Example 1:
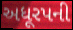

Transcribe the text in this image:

અધૂરપની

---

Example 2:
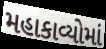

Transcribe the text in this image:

મહાકાવ્યોમાં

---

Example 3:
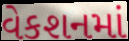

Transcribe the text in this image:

વેકશનમાં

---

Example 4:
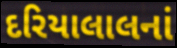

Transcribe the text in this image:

દરિયાલાલનાં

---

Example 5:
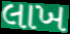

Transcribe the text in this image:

લાખ